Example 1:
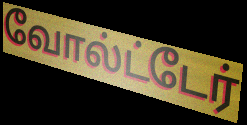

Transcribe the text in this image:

வோல்ட்டேர்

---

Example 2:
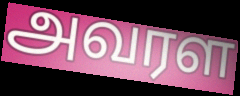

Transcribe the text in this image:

அவரள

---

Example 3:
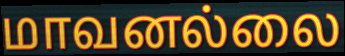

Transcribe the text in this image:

மாவனல்லை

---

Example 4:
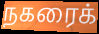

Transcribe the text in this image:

நகரைக்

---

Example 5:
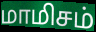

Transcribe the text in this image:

மாமிசம்